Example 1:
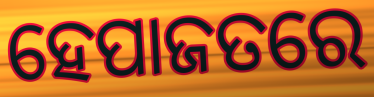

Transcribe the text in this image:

ହେପାଜତରେ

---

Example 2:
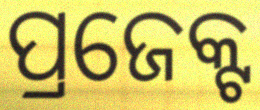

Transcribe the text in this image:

ପ୍ରଜେକ୍ଟ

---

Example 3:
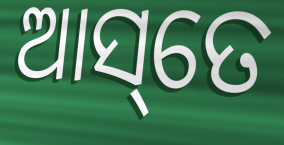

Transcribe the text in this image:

ଆସ୍‌ତେ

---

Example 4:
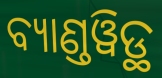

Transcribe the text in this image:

ବ୍ୟାଣ୍ଡୱିଡ୍ଥ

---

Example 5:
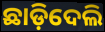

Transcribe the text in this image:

ଛାଡ଼ିଦେଲି